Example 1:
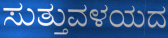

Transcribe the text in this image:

ಸುತ್ತುವಳಯದ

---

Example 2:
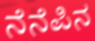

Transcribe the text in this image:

ನೆನೆಪಿನ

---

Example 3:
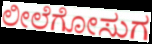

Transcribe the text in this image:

ಲೀಲೆಗೋಸುಗ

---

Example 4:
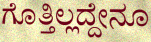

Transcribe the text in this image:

ಗೊತ್ತಿಲ್ಲದ್ದೇನೂ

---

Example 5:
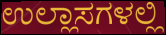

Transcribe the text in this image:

ಉಲ್ಲಾಸಗಳಲ್ಲಿ